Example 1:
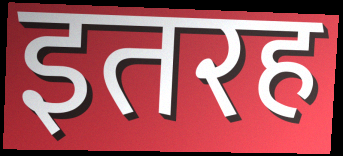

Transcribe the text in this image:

इतरह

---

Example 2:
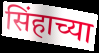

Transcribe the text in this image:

सिंहाच्या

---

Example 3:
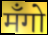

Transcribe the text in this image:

मँगो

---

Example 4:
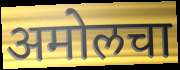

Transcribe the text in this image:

अमोलचा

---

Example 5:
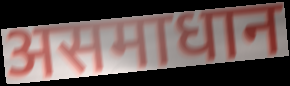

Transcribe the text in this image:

असमाधान